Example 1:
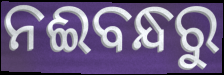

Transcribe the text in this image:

ନଈବନ୍ଧରୁ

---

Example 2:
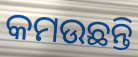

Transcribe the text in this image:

କମଉଛନ୍ତି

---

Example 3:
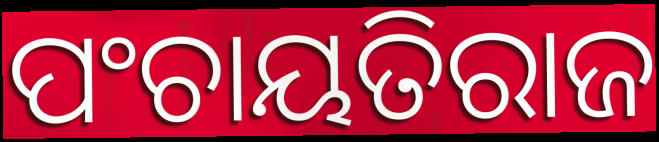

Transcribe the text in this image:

ପଂଚାୟତିରାଜ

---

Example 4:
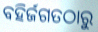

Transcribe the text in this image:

ବହିର୍ଜଗତଠାରୁ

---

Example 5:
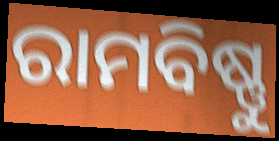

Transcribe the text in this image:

ରାମବିଷ୍ଣୁ